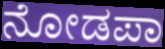
ನೋಡಪಾ